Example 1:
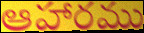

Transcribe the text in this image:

ఆహారము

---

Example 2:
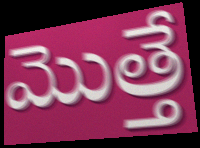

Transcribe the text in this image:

మొత్తే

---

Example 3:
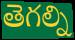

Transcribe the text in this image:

తెగల్ని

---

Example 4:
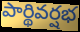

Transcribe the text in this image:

పార్థివర్షభ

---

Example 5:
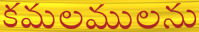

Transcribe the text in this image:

కమలములను